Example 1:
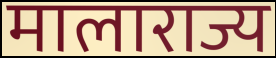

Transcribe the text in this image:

मालाराज्य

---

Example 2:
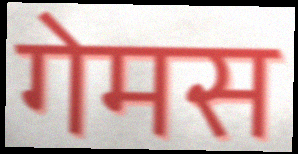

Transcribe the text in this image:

गेमस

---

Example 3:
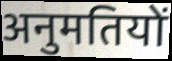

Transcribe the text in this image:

अनुमतियों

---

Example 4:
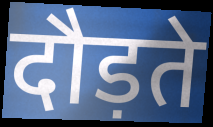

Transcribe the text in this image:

दौड़ते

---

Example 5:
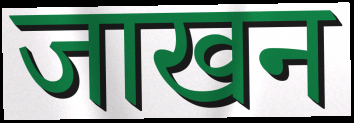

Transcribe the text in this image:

जाखन